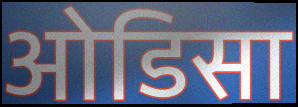
ओडिसा